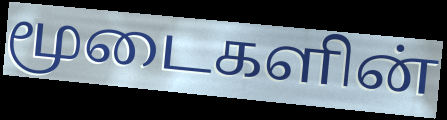
மூடைகளின்